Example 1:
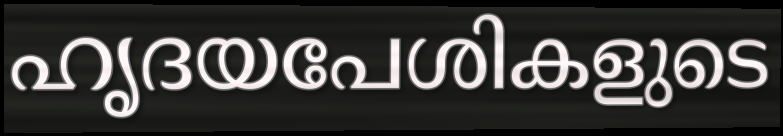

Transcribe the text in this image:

ഹൃദയപേശികളുടെ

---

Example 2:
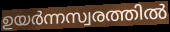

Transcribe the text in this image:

ഉയർന്നസ്വരത്തിൽ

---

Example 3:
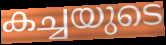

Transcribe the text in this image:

കച്ചയുടെ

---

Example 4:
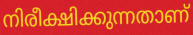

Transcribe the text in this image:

നിരീക്ഷിക്കുന്നതാണ്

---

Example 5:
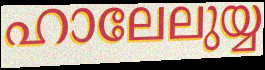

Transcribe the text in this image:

ഹാലേലുയ്യ